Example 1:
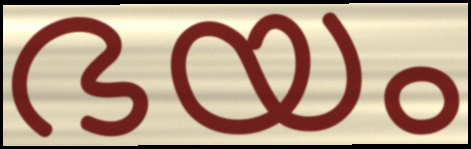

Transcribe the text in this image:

ഭയം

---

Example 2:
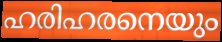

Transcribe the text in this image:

ഹരിഹരനെയും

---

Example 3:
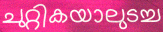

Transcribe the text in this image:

ചുറ്റികയാലുടച്ച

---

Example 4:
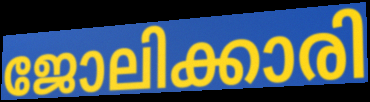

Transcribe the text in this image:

ജോലിക്കാരി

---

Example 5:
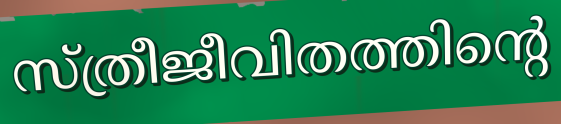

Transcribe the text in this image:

സ്ത്രീജീവിതത്തിന്റെ